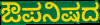
ಔಪನಿಷದ